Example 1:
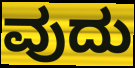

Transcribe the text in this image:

ವುದು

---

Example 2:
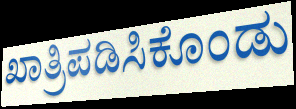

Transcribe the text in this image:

ಖಾತ್ರಿಪಡಿಸಿಕೊಂಡು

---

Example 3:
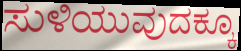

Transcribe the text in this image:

ಸುಳಿಯುವುದಕ್ಕೂ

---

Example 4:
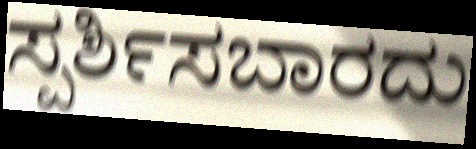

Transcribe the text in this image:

ಸ್ಪರ್ಶಿಸಬಾರದು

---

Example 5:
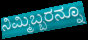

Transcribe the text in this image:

ನಿಮ್ಮಿಬ್ಬರನ್ನೂ